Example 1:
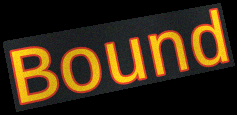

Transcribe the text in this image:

Bound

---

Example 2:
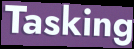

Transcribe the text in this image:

Tasking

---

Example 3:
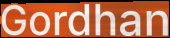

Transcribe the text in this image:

Gordhan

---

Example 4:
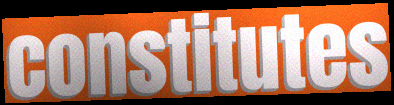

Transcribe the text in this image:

constitutes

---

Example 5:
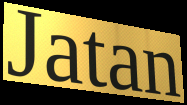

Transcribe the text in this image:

Jatan